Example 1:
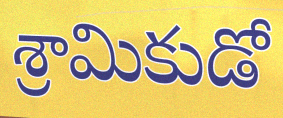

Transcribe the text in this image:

శ్రామికుడో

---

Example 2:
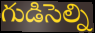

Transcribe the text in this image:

గుడిసెల్ని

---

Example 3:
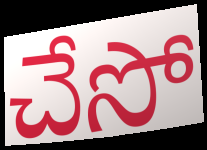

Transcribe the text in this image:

చేసో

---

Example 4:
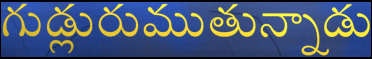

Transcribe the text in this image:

గుడ్లురుముతున్నాడు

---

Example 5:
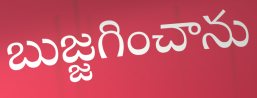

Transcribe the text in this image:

బుజ్జగించాను